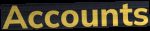
Accounts